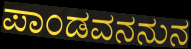
ಪಾಂಡವನನುನ